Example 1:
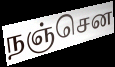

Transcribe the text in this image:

நஞ்சென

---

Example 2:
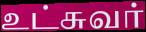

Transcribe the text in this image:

உட்சுவர்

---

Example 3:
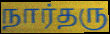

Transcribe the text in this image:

நார்தரு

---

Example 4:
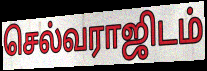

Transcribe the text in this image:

செல்வராஜிடம்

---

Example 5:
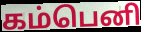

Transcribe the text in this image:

கம்பெனி